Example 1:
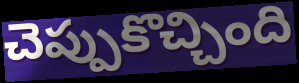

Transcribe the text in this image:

చెప్పుకొచ్చింది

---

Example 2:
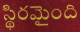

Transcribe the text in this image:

స్థిరమైంది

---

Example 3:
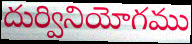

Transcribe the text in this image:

దుర్వినియోగము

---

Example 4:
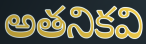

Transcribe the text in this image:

అతనికవి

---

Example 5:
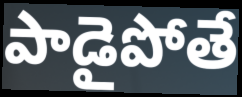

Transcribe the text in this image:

పాడైపోతే